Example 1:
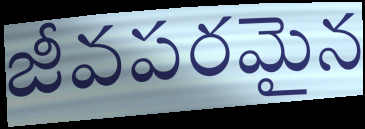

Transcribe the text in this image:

జీవపరమైన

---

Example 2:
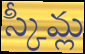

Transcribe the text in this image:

స్కీమ్ల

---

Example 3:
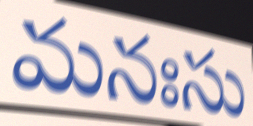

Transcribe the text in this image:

మనఃసు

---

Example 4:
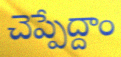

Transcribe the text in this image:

చెప్పేద్దాం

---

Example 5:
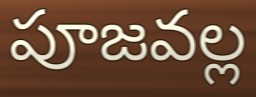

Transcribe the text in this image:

పూజవల్ల